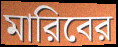
মারিবের